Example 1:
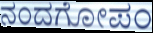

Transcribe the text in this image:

ನಂದಗೋಪಂ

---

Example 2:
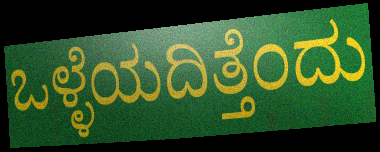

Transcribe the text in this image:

ಒಳ್ಳೆಯದಿತ್ತೆಂದು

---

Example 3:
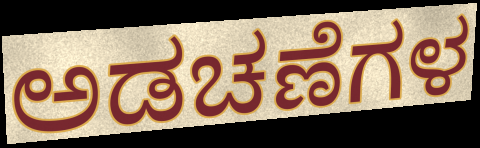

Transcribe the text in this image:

ಅಡಚಣೆಗಳ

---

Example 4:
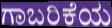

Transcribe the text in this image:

ಗಾಬರಿಕೆಯ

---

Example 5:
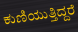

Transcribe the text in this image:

ಕುಣಿಯುತ್ತಿದ್ದರೆ